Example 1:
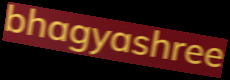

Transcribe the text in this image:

bhagyashree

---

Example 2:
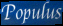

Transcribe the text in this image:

Populus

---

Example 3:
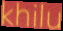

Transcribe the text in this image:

khilu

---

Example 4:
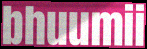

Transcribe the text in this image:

bhuumii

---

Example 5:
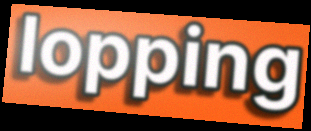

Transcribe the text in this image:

lopping